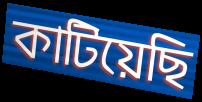
কাটিয়েছি